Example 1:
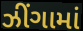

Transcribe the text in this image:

ઝીંગામાં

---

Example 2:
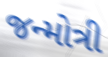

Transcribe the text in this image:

જન્મોત્રી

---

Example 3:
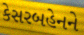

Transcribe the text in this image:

કેસરબહેનને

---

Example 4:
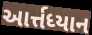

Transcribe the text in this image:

આર્ત્તધ્યાન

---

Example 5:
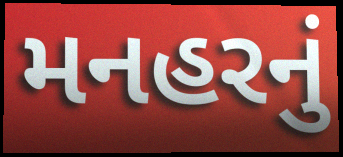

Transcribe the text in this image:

મનહરનું